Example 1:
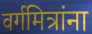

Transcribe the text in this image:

वर्गमित्रांना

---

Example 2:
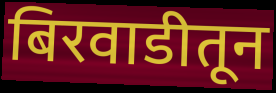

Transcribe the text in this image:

बिरवाडीतून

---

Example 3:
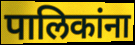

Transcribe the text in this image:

पालिकांना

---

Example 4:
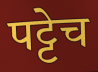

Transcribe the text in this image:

पट्टेच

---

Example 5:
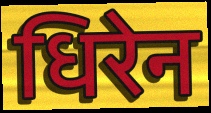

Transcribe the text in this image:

धिरेन